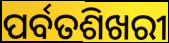
ପର୍ବତଶିଖରୀ